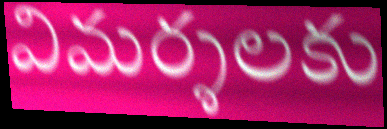
విమర్శలకు